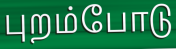
புறம்போடு